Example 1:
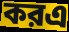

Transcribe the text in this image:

করএ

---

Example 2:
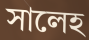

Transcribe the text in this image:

সালেহ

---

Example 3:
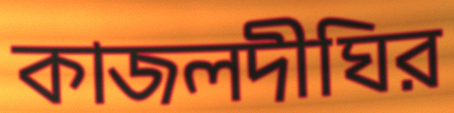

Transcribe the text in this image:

কাজলদীঘির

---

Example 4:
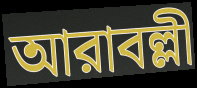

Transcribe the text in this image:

আরাবল্লী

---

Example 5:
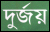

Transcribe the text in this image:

দুর্জয়